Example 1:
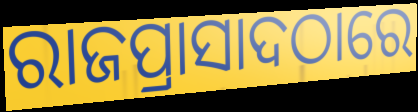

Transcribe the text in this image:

ରାଜପ୍ରାସାଦଠାରେ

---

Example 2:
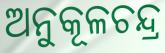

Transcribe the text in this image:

ଅନୁକୂଳଚନ୍ଦ୍ର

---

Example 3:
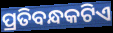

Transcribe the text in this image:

ପ୍ରତିବନ୍ଧକଟିଏ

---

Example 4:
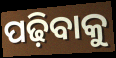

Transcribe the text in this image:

ପଢ଼ିବାକୁ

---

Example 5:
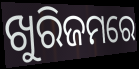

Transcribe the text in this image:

ଖୁରିଜମରେ